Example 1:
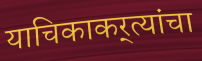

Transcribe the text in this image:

याचिकाकर्त्यांचा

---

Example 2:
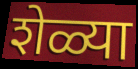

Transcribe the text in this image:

शेळ्या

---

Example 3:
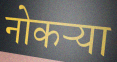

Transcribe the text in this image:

नोकऱ्या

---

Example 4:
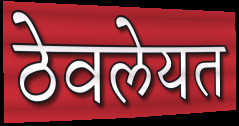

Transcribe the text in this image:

ठेवलेयत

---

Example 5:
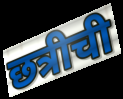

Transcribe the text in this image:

छत्रीची